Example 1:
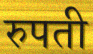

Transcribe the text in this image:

रुपती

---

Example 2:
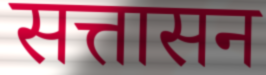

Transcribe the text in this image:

सत्तासन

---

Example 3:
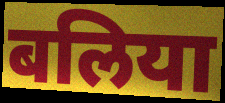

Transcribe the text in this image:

बलिया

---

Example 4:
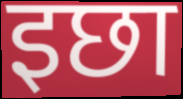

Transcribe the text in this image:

इछा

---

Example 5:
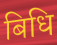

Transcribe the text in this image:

बिधि